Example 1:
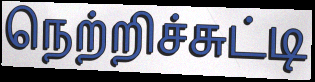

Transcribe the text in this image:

நெற்றிச்சுட்டி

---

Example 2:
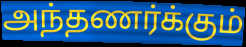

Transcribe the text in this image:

அந்தணர்க்கும்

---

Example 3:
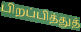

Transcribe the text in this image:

பிறப்பித்துத்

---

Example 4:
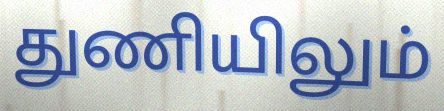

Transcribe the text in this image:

துணியிலும்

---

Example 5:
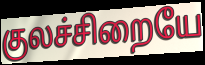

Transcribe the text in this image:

குலச்சிறையே